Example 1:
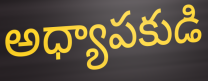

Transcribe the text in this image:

అధ్యాపకుడి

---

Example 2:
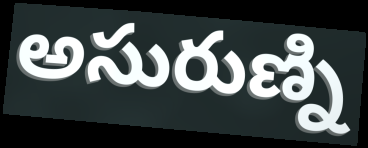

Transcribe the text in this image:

అసురుణ్ని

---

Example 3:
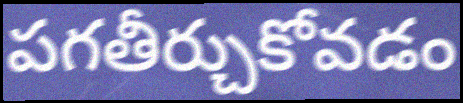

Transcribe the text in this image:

పగతీర్చుకోవడం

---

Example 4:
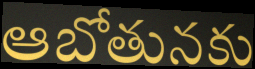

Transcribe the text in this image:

ఆబోతునకు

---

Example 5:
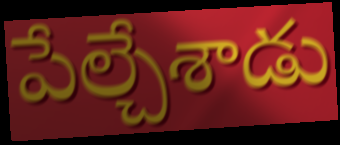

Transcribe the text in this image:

పేల్చేశాడు